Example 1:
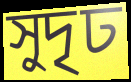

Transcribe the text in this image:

সুদৃঢ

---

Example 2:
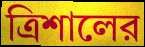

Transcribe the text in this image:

ত্রিশালের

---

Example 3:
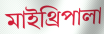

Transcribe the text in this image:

মাইথ্রিপালা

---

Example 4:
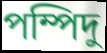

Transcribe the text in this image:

পম্পিদু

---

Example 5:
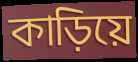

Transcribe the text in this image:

কাড়িয়ে